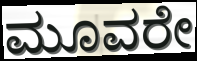
ಮೂವರೇ